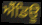
ਐਂਡਿਊ